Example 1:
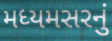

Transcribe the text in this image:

મધ્યમસરનું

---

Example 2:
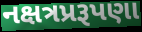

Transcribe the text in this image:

નક્ષત્રપ્રરૂપણા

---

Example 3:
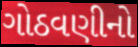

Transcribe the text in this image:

ગોઠવણીનો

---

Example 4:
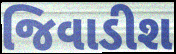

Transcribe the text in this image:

જિવાડીશ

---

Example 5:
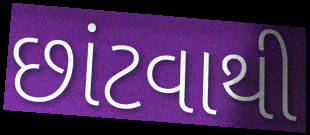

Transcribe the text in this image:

છાંટવાથી